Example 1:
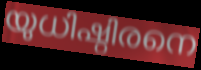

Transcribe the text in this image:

യുധിഷ്ഠിരനെ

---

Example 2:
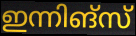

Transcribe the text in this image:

ഇന്നിങ്സ്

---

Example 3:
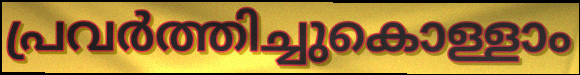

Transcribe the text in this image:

പ്രവർത്തിച്ചുകൊള്ളാം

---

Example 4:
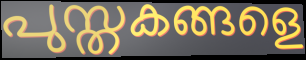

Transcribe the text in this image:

പുസ്തകങ്ങളെ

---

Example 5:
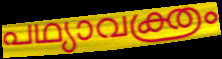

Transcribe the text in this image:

പഥ്യാവക്ത്രം